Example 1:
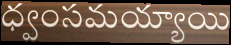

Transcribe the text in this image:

ధ్వంసమయ్యాయి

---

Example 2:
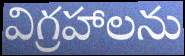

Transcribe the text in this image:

విగ్రహాలను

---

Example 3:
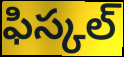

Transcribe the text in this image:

ఫిస్కల్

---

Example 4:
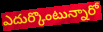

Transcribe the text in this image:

ఎదుర్కొంటున్నారో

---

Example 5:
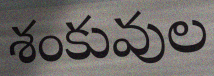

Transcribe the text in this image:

శంకువుల